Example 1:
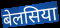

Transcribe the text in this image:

बेलसिया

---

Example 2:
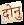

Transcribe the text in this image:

दोनु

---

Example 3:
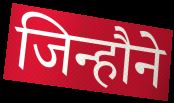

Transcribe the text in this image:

जिन्हौने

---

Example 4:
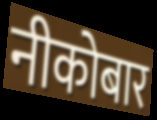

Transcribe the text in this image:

नीकोबार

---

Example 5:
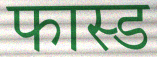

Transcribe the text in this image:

फास्ड